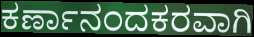
ಕರ್ಣಾನಂದಕರವಾಗಿ